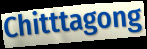
Chitttagong